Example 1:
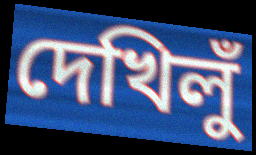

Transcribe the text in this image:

দেখিলুঁ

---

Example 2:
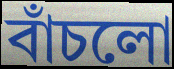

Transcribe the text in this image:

বাঁচলো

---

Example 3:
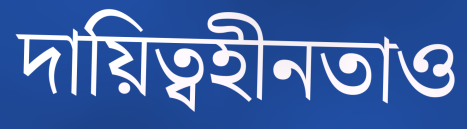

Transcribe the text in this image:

দায়িত্বহীনতাও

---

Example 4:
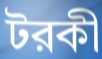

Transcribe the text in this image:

টরকী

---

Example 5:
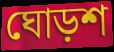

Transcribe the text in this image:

ঘোড়শ